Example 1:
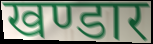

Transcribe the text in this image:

खण्डार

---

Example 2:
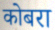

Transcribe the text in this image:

कोबरा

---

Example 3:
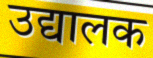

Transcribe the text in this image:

उद्यालक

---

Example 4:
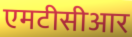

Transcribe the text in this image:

एमटीसीआर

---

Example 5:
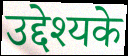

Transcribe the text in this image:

उद्देश्यके